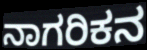
ನಾಗರಿಕನ